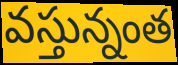
వస్తున్నంత